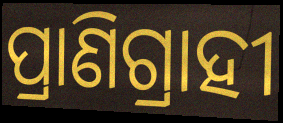
ପ୍ରାଣିଗ୍ରାହୀ